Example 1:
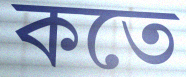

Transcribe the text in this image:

কতে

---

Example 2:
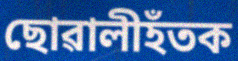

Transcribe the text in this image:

ছোৱালীহঁতক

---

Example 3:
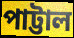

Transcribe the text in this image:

পাট্টাল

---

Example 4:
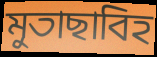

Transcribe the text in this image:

মুতাছাবিহ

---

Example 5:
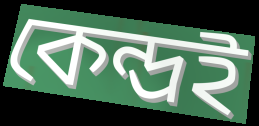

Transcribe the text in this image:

কেন্দ্ৰই